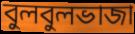
বুলবুলভাজা